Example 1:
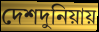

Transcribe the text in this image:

দেশদুনিয়ায়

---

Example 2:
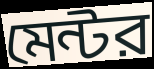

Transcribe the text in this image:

মেন্টর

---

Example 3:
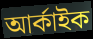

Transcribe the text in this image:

আর্কাইক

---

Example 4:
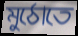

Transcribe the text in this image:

মুঠোতে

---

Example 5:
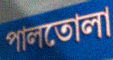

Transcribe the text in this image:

পালতোলা